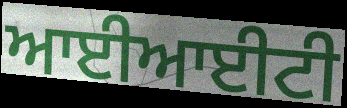
ਆਈਆਈਟੀ